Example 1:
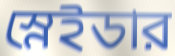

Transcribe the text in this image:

স্নেইডার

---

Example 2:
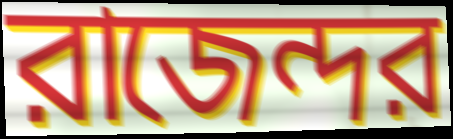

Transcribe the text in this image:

রাজেন্দর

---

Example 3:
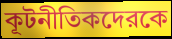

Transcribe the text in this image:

কূটনীতিকদেরকে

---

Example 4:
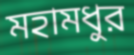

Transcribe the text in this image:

মহামধুর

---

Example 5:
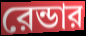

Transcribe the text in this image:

রেন্ডার